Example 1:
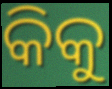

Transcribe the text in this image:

କିକୁ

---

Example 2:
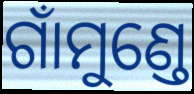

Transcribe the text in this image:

ଗାଁମୁଣ୍ଡେ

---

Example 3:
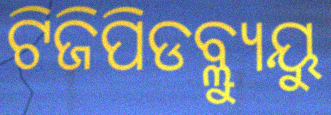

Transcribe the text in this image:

ଟିଜିପିଡବ୍ଲ୍ୟୁୟୁ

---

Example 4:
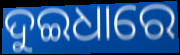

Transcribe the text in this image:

ଦୁଇଧାରେ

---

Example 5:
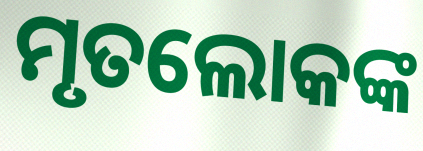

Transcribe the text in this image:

ମୃତଲୋକଙ୍କ